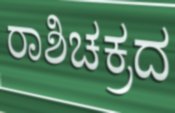
ರಾಶಿಚಕ್ರದ